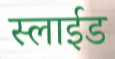
स्लाईड